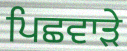
ਪਿਛਵਾੜੇ